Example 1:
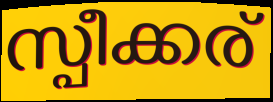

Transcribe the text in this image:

സ്പീക്കര്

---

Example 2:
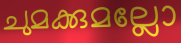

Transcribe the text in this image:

ചുമക്കുമല്ലോ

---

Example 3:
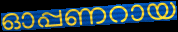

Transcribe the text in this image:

ഓപ്പണറായ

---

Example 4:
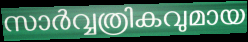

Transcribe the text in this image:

സാർവ്വത്രികവുമായ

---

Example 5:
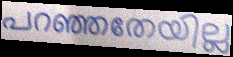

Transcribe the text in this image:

പറഞ്ഞതേയില്ല